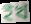
ইখ